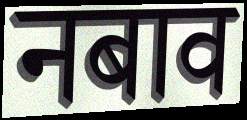
नबाव